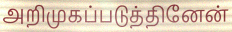
அறிமுகப்படுத்தினேன்